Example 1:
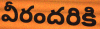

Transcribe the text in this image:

వీరందరికి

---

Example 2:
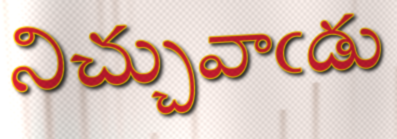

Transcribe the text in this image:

నిచ్చువాఁడు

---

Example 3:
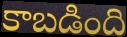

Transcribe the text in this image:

కాబడింది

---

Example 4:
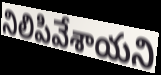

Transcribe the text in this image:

నిలిపివేశాయని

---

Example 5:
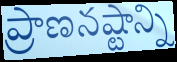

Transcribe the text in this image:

ప్రాణనష్టాన్ని